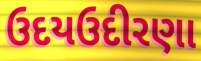
ઉદયઉદીરણા